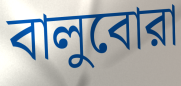
বালুবোরা